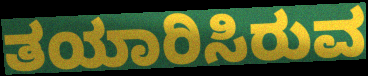
ತಯಾರಿಸಿರುವ